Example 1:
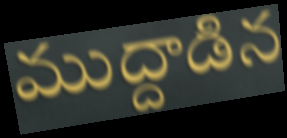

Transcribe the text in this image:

ముద్దాడిన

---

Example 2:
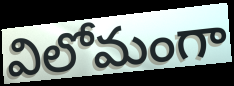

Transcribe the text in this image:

విలోమంగా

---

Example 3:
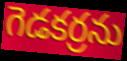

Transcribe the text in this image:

గెడకర్రను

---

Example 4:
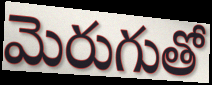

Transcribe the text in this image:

మెరుగుతో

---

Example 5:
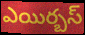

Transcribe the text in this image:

ఎయిర్బస్